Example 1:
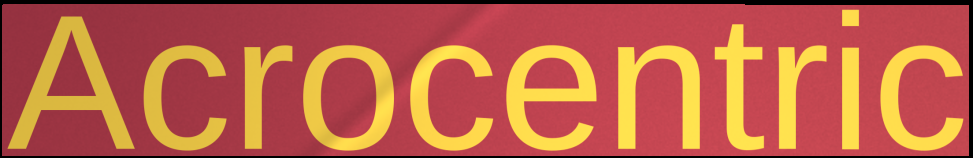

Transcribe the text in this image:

Acrocentric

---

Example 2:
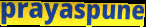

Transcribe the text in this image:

prayaspune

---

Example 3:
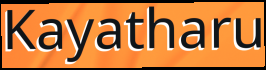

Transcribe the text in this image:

Kayatharu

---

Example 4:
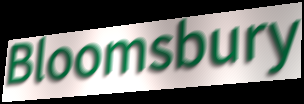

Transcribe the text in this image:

Bloomsbury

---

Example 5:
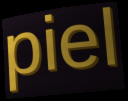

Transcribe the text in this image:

piel